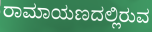
ರಾಮಾಯಣದಲ್ಲಿರುವ